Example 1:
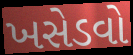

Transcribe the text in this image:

ખસેડવો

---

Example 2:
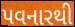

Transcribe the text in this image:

પવનારથી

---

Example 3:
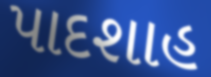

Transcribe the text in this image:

પાદશાહ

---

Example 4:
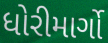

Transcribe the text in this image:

ધોરીમાર્ગો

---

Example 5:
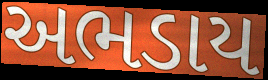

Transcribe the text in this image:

અભડાય